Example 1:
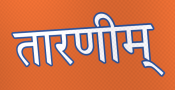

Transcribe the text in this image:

तारणीम्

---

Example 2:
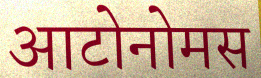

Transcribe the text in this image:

आटोनोमस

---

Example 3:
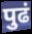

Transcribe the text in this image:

पुढं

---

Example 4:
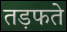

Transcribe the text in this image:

तड़फते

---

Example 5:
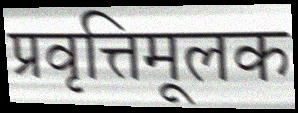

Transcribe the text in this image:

प्रवृत्तिमूलक